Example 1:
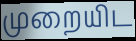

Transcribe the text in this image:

முறையிட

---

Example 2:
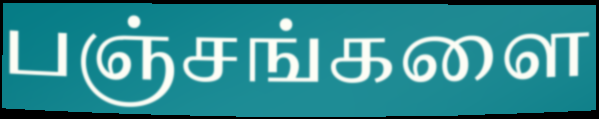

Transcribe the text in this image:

பஞ்சங்களை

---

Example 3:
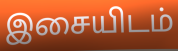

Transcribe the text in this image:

இசையிடம்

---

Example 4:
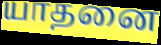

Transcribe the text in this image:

யாதனை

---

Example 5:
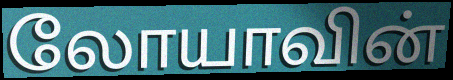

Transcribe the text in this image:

லோயாவின்